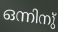
ഒന്നിനു്